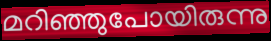
മറിഞ്ഞുപോയിരുന്നു